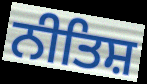
ਨੀਤਿਸ਼